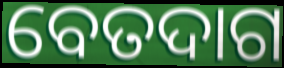
ବେତଦାଗ